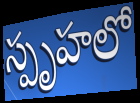
స్పృహలో